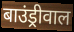
बाउंड्रीवाल